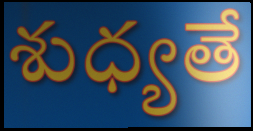
శుధ్యతే